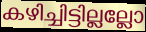
കഴിച്ചിട്ടില്ലല്ലോ